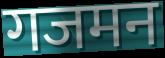
गजमन